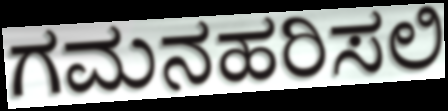
ಗಮನಹರಿಸಲಿ